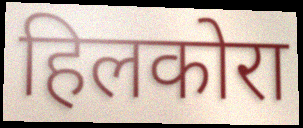
हिलकोरा